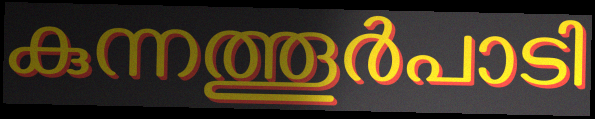
കുന്നത്തൂർപാടി